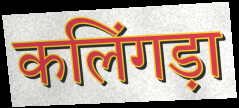
कलिंगड़ा